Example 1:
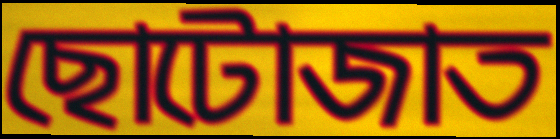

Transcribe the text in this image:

ছোটোজাত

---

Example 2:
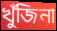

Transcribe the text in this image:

খুঁজিনা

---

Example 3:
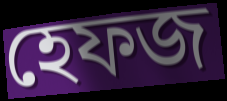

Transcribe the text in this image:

হেফজ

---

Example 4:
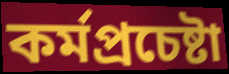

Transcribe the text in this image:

কর্মপ্রচেষ্টা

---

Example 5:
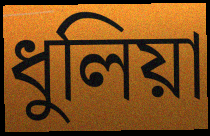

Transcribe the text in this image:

ধুলিয়া